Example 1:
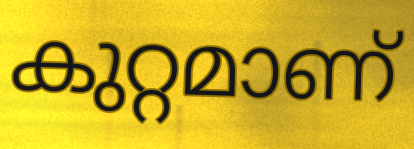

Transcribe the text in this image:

കുറ്റമാണ്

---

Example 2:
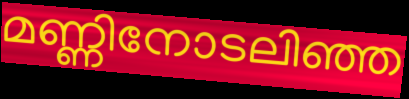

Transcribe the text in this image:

മണ്ണിനോടലിഞ്ഞ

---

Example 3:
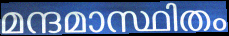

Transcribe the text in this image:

മന്ദമാസ്ഥിതം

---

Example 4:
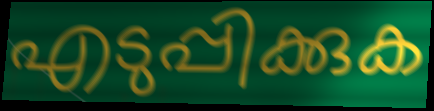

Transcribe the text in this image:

എടുപ്പിക്കുക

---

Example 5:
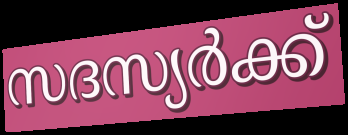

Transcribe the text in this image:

സദസ്യർക്ക്